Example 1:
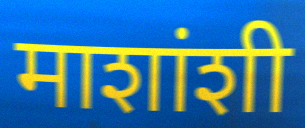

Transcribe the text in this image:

माशांशी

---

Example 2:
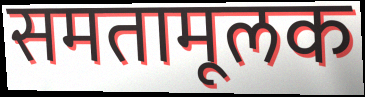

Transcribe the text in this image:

समतामूलक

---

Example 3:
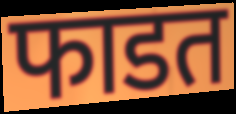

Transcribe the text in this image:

फाडत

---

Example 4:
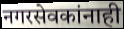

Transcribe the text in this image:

नगरसेवकांनाही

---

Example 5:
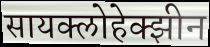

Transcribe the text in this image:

सायक्लोहेक्झीन